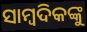
ସାମ୍ବଦିକଙ୍କୁ